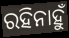
ରହିନାହୁଁ